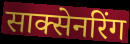
साक्सेनरिंग